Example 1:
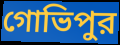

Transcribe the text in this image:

গোভিপুর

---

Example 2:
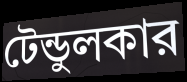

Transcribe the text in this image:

টেন্ডুলকার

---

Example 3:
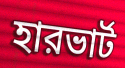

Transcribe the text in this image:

হারভার্ট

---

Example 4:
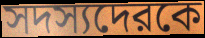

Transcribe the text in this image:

সদস্যদেরকে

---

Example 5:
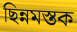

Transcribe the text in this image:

ছিন্নমস্তক